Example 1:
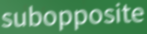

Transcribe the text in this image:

subopposite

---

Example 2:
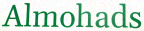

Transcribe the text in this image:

Almohads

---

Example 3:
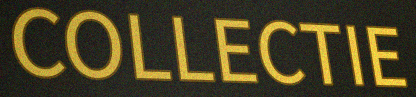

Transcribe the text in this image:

COLLECTIE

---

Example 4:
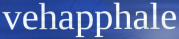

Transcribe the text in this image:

vehapphale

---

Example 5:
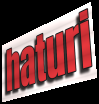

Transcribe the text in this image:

haturi